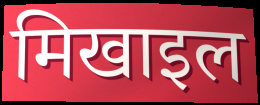
मिखाइल